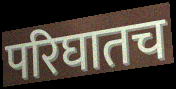
परिघातच